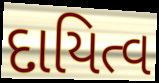
દાયિત્વ